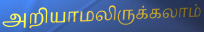
அறியாமலிருக்கலாம்